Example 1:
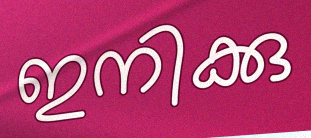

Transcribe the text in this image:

ഇനിക്കു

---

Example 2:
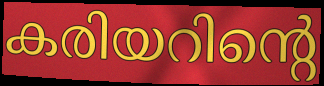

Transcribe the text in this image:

കരിയറിന്റെ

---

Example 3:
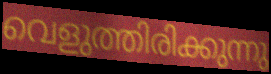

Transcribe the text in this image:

വെളുത്തിരിക്കുന്നു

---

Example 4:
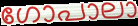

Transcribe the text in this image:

ഗോപാലാ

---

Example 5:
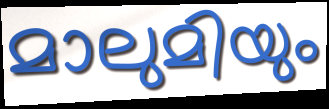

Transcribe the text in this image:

മാലുമിയും